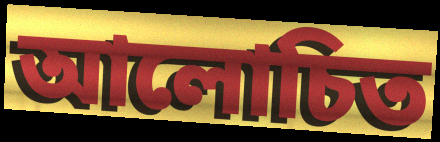
আলোচিত